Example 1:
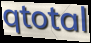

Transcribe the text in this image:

qtotal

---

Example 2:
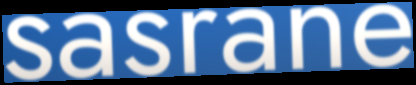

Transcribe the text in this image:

sasrane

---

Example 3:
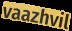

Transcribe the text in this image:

vaazhvil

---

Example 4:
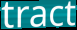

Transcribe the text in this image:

tract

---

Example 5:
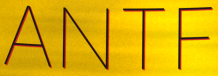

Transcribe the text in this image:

ANTF